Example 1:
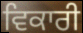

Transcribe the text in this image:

ਵਿਕਾਰੀ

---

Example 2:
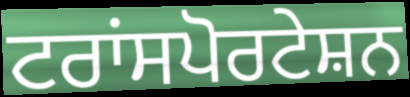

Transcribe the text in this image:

ਟਰਾਂਸਪੋਰਟੇਸ਼ਨ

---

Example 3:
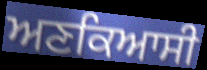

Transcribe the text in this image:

ਅਣਕਿਆਸੀ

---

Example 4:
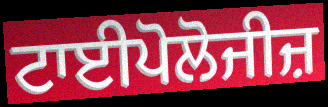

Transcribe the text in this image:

ਟਾਈਪੋਲੋਜੀਜ਼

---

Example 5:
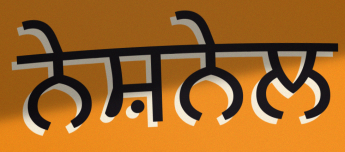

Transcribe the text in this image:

ਨੇਸ਼ਨੇਲ